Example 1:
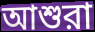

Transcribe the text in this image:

আশুরা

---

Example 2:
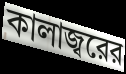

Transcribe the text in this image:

কালাজ্বরের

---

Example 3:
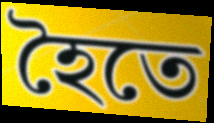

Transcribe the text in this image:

হৈতে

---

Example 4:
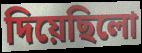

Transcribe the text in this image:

দিয়েছিলো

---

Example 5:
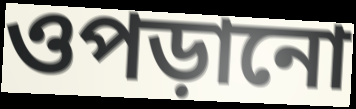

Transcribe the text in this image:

ওপড়ানো